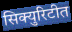
सिक्युरिटीत